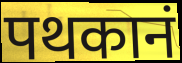
पथकानं